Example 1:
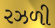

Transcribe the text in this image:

રઝળી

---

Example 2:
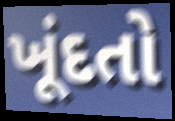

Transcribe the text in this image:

ખૂંદતો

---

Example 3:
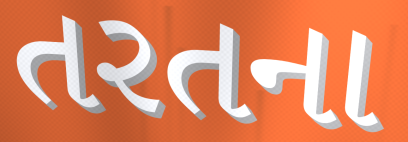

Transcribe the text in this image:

તરતના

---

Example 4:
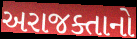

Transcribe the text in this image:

અરાજક્તાનો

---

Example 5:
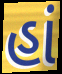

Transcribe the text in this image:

હાં